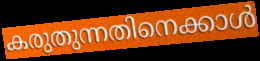
കരുതുന്നതിനെക്കാൾ